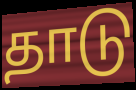
தாடு